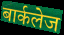
बार्कलेज